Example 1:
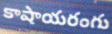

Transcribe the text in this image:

కాషాయరంగు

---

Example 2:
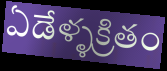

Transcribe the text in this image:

ఏడేళ్ళక్రితం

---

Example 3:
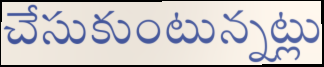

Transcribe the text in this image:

చేసుకుంటున్నట్లు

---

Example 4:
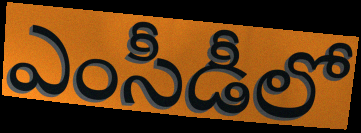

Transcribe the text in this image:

ఎంసీడీలో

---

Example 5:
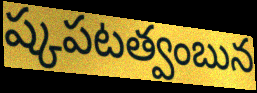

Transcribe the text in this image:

ష్కపటత్వంబున